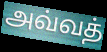
அவ்வத்